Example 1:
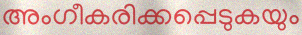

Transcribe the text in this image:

അംഗീകരിക്കപ്പെടുകയും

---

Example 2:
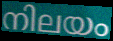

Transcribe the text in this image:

നിലയം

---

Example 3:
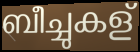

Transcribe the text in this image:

ബീച്ചുകള്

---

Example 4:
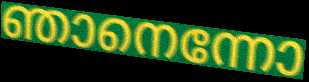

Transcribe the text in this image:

ഞാനെന്നോ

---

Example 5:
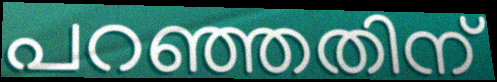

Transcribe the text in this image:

പറഞ്ഞതിന്